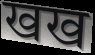
खख